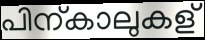
പിന്കാലുകള്